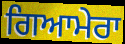
ਗਿਆਮੇਰਾ